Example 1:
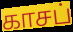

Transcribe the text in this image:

காசப்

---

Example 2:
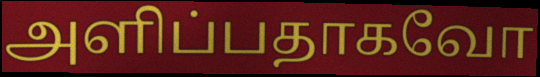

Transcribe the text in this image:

அளிப்பதாகவோ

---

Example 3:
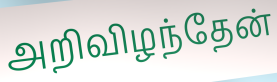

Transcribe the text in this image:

அறிவிழந்தேன்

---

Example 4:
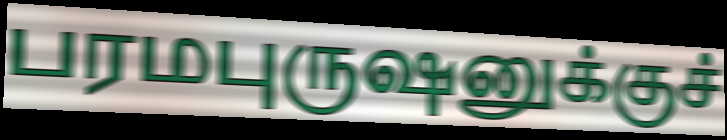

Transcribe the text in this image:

பரமபுருஷனுக்குச்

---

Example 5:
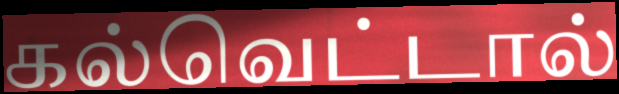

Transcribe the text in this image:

கல்வெட்டால்